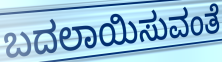
ಬದಲಾಯಿಸುವಂತೆ